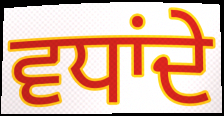
ਵਧਾਂਦੇ